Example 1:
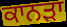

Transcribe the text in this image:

ਕਾਨੜਾ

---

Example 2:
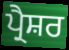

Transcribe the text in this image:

ਪ੍ਰੈਸ਼ਰ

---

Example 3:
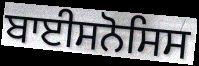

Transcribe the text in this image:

ਬਾਈਸਨੋਸਿਸ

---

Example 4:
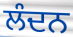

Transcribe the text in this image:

ਲੰਦਨ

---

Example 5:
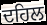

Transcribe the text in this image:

ਦਹਿਲ